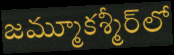
జమ్మూకశ్మీర్‌లో